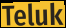
Teluk